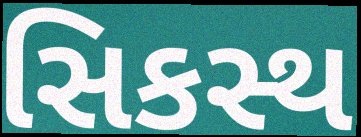
સિકસ્થ